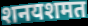
शनयशमत